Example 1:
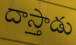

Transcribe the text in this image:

దాస్తాడు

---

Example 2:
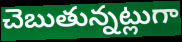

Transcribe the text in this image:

చెబుతున్నట్లుగా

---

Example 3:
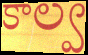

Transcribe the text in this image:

కాల్వ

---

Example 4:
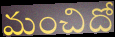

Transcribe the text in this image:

మంచిదో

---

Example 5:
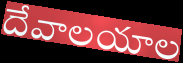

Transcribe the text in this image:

దేవాలయాల